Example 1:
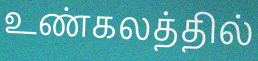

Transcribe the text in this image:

உண்கலத்தில்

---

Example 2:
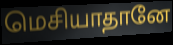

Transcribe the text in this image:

மெசியாதானே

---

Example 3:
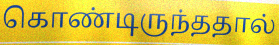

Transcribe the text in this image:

கொண்டிருந்ததால்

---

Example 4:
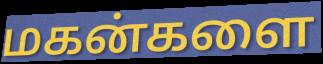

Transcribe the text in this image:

மகன்களை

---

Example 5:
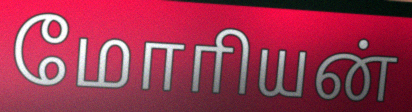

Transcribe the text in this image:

மோரியன்